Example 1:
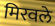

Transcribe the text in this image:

मिरवले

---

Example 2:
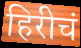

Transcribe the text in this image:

हिरीचं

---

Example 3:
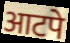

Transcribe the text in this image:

आटपे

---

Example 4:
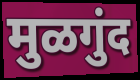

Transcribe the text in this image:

मुळगुंद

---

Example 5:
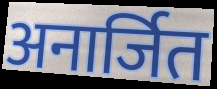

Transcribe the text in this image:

अनार्जित